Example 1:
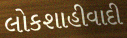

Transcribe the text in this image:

લોકશાહીવાદી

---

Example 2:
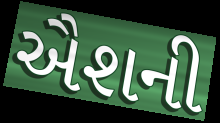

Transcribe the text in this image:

ઐશની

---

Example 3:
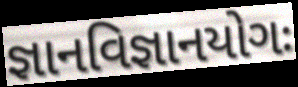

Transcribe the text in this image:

જ્ઞાનવિજ્ઞાનયોગઃ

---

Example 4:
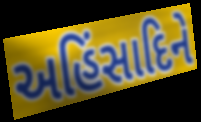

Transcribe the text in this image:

અહિંસાદિને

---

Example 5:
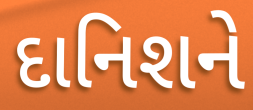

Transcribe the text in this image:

દાનિશને